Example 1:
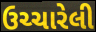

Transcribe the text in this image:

ઉચ્ચારેલી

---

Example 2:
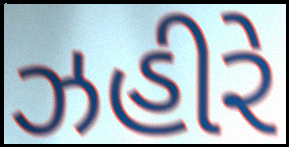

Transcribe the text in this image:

ઝહીરે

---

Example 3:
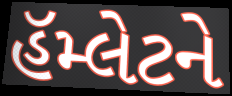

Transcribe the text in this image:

હૅમ્લેટને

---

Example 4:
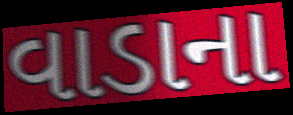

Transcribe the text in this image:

વાડાના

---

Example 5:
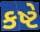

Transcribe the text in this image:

કષ્ટે